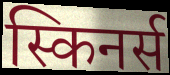
स्किनर्स